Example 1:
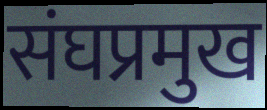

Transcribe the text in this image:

संघप्रमुख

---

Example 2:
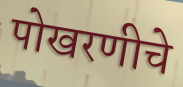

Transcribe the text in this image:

पोखरणीचे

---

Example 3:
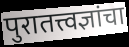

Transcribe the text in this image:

पुरातत्त्वज्ञांचा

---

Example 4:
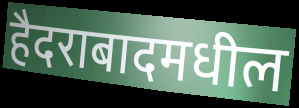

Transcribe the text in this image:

हैदराबादमधील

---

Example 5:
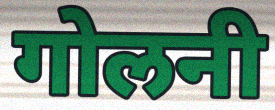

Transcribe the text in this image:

गोलनी